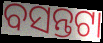
ବସନ୍ତଟା